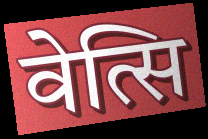
वेत्सि